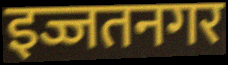
इज्जतनगर